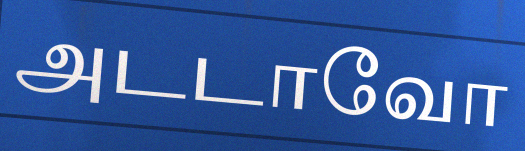
அடடாவோ